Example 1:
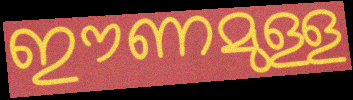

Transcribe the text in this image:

ഈണമുള്ള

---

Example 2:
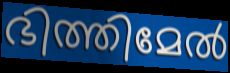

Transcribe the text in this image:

ഭിത്തിമേൽ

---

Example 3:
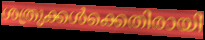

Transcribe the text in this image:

ശത്രുക്കൾക്കെതിരായി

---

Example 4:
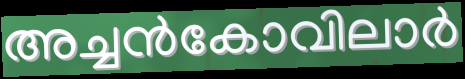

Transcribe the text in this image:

അച്ചൻകോവിലാർ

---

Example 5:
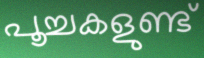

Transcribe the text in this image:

പൂച്ചകളുണ്ട്